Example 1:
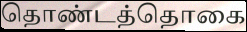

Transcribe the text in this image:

தொண்டத்தொகை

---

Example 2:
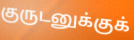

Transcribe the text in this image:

குருடனுக்குக்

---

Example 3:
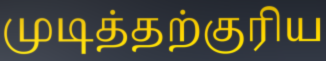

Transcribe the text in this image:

முடித்தற்குரிய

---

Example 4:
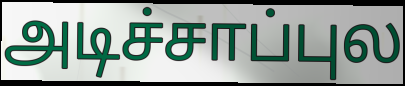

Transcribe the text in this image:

அடிச்சாப்புல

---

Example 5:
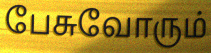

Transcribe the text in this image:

பேசுவோரும்